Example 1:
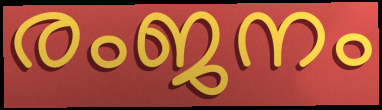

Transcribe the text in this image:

രംജനം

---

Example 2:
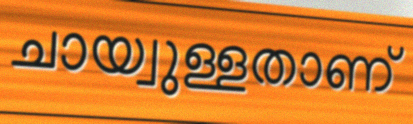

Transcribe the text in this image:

ചായ്വുള്ളതാണ്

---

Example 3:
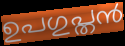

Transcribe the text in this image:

ഉപഗുപ്തൻ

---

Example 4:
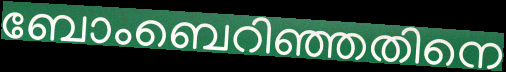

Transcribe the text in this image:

ബോംബെറിഞ്ഞതിനെ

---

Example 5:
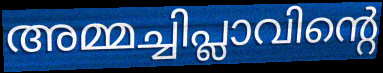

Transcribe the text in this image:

അമ്മച്ചിപ്ലാവിന്റെ